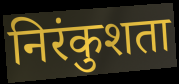
निरंकुशता